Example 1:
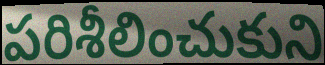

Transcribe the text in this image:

పరిశీలించుకుని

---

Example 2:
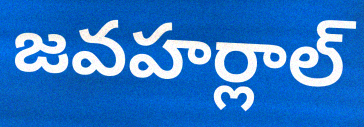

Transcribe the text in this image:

జవహర్లాల్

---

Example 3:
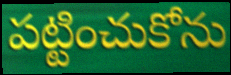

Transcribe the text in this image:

పట్టించుకోను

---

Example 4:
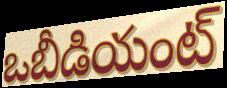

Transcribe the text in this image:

ఒబీడియంట్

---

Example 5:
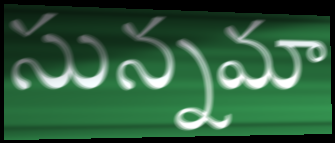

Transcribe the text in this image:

సున్నమా